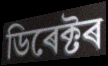
ডিৰেক্টৰ